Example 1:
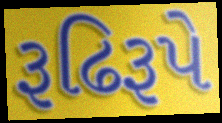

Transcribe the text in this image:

રૂઢિરૂપે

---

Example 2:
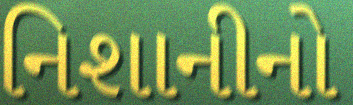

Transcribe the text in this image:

નિશાનીનો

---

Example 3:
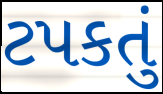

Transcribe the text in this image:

ટપકતું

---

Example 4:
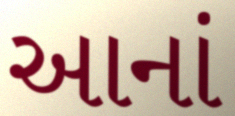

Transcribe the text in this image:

આનાં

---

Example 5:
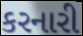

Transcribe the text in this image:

કરનારી